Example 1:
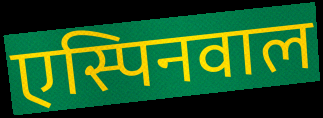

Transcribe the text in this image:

एस्पिनवाल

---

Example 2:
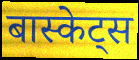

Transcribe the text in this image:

बास्केट्स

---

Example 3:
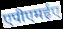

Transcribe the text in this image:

एपीएमईए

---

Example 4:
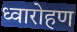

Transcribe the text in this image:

ध्वारोहण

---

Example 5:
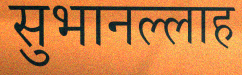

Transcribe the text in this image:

सुभानल्लाह